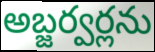
అబ్జర్వర్లను